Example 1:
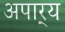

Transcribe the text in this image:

अपार्य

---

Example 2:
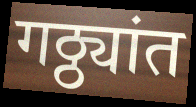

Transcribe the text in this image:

गठ्ठ्यांत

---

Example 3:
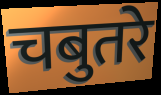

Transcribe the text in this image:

चबुतरे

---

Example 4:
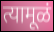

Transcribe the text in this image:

त्यामूळं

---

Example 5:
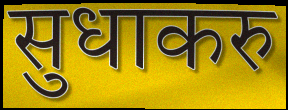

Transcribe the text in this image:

सुधाकरु